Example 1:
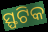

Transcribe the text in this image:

ସ୍ଫଟିକ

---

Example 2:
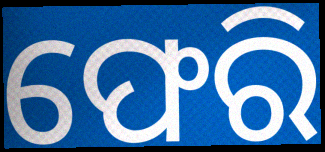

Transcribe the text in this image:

ଫେରି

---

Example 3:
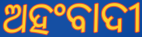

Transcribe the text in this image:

ଅହଂବାଦୀ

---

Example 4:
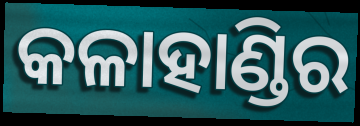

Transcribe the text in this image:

କଳାହାଣ୍ଡିର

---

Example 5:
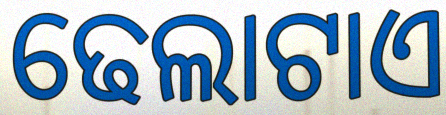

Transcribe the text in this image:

ଢେଲାଟାଏ